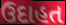
ઉદાહત